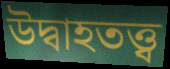
উদ্বাহতত্ত্ব